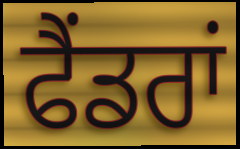
ਫੈਂਡਰਾਂ